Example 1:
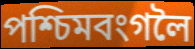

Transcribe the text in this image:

পশ্চিমবংগলৈ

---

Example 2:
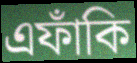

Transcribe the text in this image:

এফাঁকি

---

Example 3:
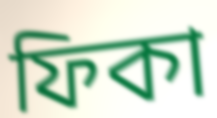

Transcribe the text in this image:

ফিকা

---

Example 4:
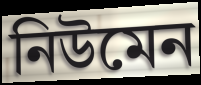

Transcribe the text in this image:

নিউমেন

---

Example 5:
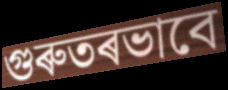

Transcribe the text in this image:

গুৰুতৰভাবে